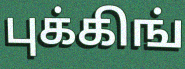
புக்கிங்